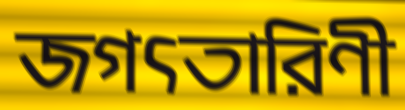
জগৎতারিণী